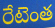
రేటెంత